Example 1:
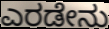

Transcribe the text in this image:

ಎರಡೇನು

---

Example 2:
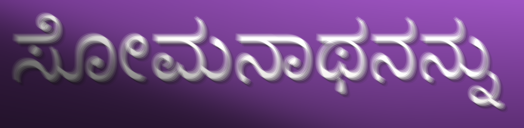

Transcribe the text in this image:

ಸೋಮನಾಥನನ್ನು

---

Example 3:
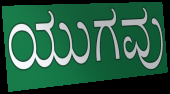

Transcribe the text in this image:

ಯುಗವು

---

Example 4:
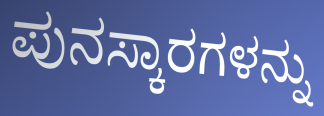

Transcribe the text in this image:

ಪುನಸ್ಕಾರಗಳನ್ನು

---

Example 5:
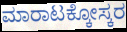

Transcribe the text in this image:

ಮಾರಾಟಕ್ಕೋಸ್ಕರ